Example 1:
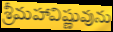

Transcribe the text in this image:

శ్రీమహావిష్ణువును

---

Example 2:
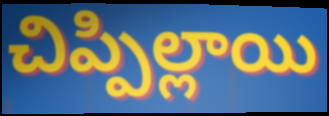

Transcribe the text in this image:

చిప్పిల్లాయి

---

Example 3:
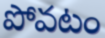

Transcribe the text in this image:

పోవటం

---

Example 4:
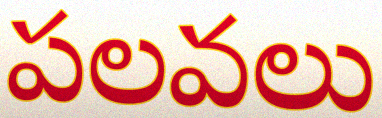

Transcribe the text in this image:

పలవలు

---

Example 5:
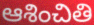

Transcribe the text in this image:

ఆశించితి